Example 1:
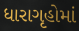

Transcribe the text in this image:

ધારાગૃહોમાં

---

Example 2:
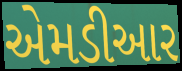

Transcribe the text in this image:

એમડીઆર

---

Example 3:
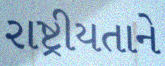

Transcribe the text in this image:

રાષ્ટ્રીયતાને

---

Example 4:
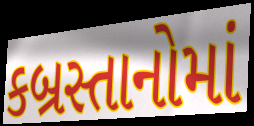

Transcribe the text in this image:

કબ્રસ્તાનોમાં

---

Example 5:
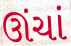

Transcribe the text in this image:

ઊંચાં